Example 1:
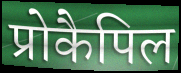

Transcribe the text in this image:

प्रोकैपिल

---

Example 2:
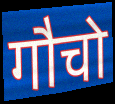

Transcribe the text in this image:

गौचो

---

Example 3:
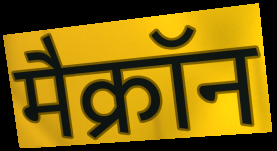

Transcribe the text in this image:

मैक्रॉन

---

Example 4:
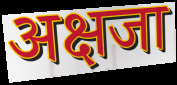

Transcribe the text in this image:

अक्षजा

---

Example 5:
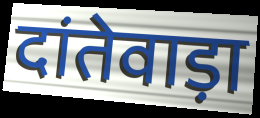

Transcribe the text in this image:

दांतेवाड़ा